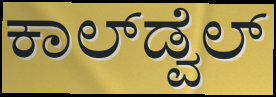
ಕಾಲ್‌ಡ್ವೆಲ್